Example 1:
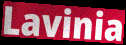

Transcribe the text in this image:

Lavinia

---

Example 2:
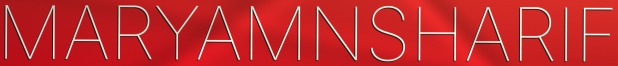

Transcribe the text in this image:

MARYAMNSHARIF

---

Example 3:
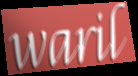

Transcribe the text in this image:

waril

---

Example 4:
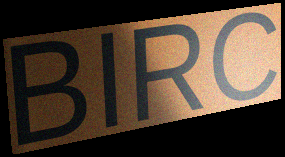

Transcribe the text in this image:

BIRC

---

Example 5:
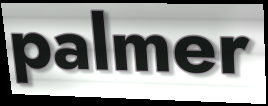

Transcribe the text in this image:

palmer